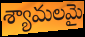
శ్యామలమై